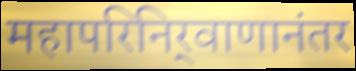
महापरिनिर्वाणानंतर